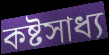
কষ্টসাধ্য